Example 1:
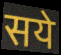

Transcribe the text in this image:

सये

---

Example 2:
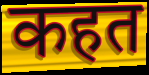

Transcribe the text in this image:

कहत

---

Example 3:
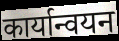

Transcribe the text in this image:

कार्यान्वयन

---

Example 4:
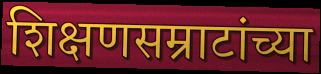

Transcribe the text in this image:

शिक्षणसम्राटांच्या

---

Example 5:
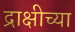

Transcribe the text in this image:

द्राक्षीच्या